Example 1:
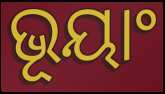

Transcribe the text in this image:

ଭୂୟାଂ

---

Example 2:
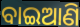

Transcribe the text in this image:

ବାଇଆଣି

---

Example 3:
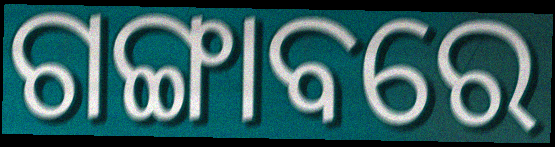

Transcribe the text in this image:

ଗଙ୍ଗାବରେ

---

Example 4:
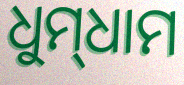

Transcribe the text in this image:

ଧୁମ୍‌ଧାମ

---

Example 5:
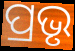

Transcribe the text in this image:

ପ୍ରଭୃ